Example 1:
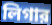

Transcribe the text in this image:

লিগার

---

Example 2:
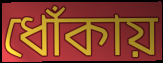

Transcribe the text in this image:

ধোঁকায়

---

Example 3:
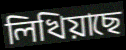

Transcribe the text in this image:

লিখিয়াছে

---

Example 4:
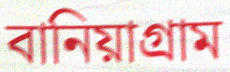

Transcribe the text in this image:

বানিয়াগ্রাম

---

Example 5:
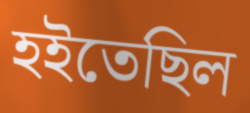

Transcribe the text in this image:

হইতেছিল